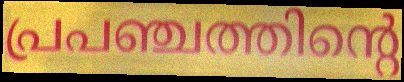
പ്രപഞ്ചത്തിന്റെ